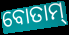
ବୋତାମ୍